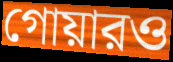
গোয়ারও